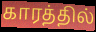
காரத்தில்